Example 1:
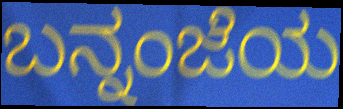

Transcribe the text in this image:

ಬನ್ನಂಜೆಯ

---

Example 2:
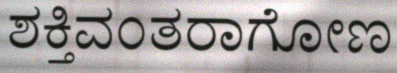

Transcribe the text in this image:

ಶಕ್ತಿವಂತರಾಗೋಣ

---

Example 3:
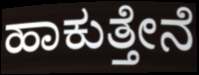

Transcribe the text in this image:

ಹಾಕುತ್ತೇನೆ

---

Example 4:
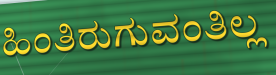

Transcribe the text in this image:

ಹಿಂತಿರುಗುವಂತಿಲ್ಲ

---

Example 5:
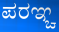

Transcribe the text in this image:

ಪರಞ್ಚ